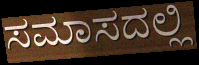
ಸಮಾಸದಲ್ಲಿ